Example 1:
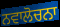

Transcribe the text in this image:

ਨਵਾਲੋਚਨਾ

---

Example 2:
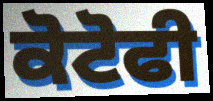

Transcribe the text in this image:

ਕੋਟੋਫੀ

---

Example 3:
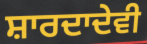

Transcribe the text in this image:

ਸ਼ਾਰਦਾਦੇਵੀ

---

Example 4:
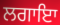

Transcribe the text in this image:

ਲਗਾਇਾ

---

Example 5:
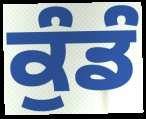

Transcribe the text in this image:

ਕੁੰਡੰ